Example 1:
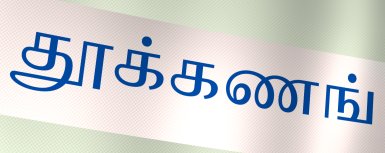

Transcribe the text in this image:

தூக்கணங்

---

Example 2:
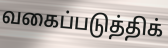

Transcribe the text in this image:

வகைப்படுத்திக்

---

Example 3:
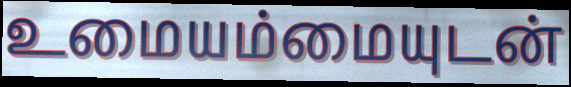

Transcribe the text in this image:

உமையம்மையுடன்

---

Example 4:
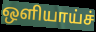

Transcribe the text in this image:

ஒளியாய்ச்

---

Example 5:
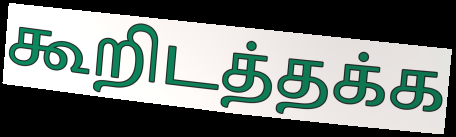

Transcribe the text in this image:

கூறிடத்தக்க